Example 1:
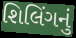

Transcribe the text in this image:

શિલિંગનું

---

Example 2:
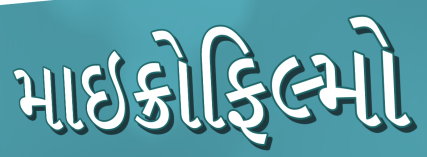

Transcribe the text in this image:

માઇક્રોફિલ્મો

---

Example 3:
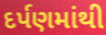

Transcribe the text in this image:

દર્પણમાંથી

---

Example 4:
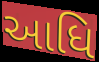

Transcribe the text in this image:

આધિ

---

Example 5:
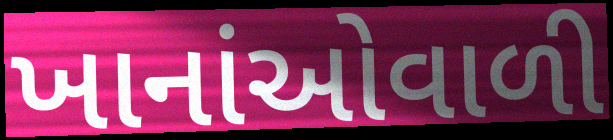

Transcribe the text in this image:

ખાનાંઓવાળી